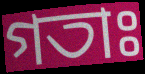
গতাঃ